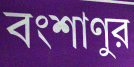
বংশাণুর